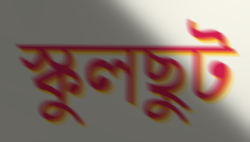
স্কুলছুট